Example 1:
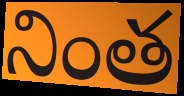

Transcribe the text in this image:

నింత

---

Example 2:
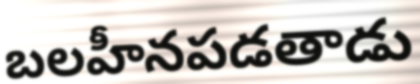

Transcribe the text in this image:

బలహీనపడతాడు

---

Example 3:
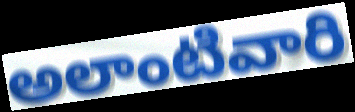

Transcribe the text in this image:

అలాంటివారి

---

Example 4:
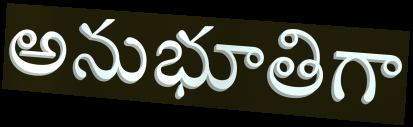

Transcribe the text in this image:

అనుభూతిగా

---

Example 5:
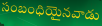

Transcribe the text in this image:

సంబంధియైనవాడు